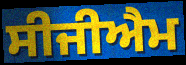
ਸੀਜੀਐਮ